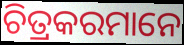
ଚିତ୍ରକରମାନେ